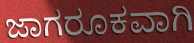
ಜಾಗರೂಕವಾಗಿ